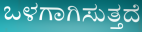
ಒಳಗಾಗಿಸುತ್ತದೆ